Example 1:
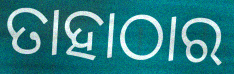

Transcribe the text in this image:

ତାହାଠାର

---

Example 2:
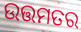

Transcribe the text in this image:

ଉତ୍ତମତର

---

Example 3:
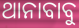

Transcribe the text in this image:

ଥାନାବାବୁ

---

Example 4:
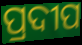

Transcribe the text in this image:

ପ୍ରଦୀପ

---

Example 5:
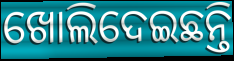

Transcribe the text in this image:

ଖୋଲିଦେଇଛନ୍ତି